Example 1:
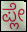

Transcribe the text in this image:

ಪ್ಲೇ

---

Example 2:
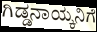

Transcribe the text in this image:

ಗಿಡ್ಡನಾಯ್ಕನಿಗೆ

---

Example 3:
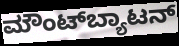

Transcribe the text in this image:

ಮೌಂಟ್‌ಬ್ಯಾಟನ್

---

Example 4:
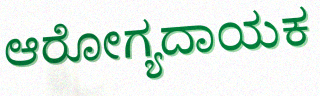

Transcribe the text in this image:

ಆರೋಗ್ಯದಾಯಕ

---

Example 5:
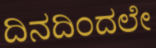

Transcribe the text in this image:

ದಿನದಿಂದಲೇ